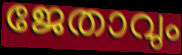
ജേതാവും